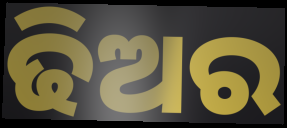
ଢିଅର